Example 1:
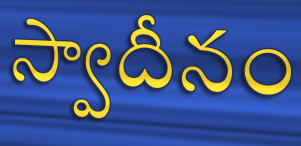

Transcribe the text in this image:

స్వాదీనం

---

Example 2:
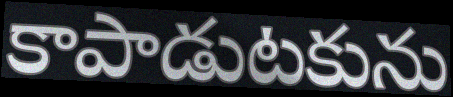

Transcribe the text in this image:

కాపాడుటకును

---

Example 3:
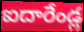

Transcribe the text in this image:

ఐదారేండ్ల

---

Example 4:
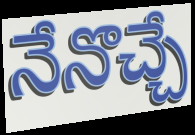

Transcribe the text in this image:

నేనొచ్చే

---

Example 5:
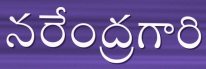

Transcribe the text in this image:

నరేంద్రగారి